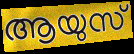
ആയുസ്